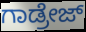
ಗಾಡ್ರೇಜ್